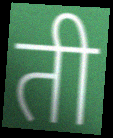
ती